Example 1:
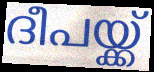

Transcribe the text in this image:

ദീപയ്ക്ക്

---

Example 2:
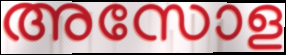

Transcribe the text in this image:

അസോള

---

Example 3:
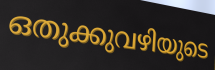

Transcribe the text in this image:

ഒതുക്കുവഴിയുടെ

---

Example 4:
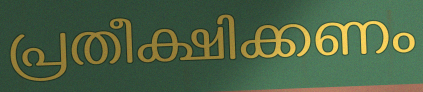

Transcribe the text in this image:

പ്രതീക്ഷിക്കണം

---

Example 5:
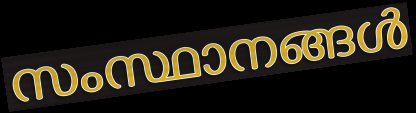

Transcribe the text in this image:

സംസ്ഥാനങ്ങൾ